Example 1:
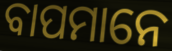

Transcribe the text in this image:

ବାପମାନେ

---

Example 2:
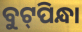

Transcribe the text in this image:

ବୁଟ୍‌ପିନ୍ଧା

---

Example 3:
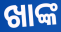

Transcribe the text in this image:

ଖାଙ୍କ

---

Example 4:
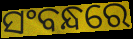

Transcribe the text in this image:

ସଂବନ୍ଧରେ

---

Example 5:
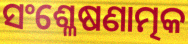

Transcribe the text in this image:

ସଂଶ୍ଳେଷଣାତ୍ମକ